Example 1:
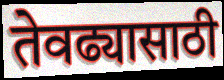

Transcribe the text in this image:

तेवढ्यासाठी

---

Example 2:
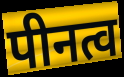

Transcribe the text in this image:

पीनत्व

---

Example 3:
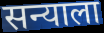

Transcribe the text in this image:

सन्याला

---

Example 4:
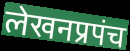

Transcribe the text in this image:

लेखनप्रपंच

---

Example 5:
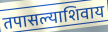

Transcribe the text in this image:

तपासल्याशिवाय